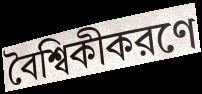
বৈশ্বিকীকরণে